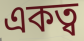
একত্ব